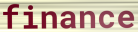
finance